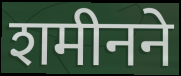
शमीनने